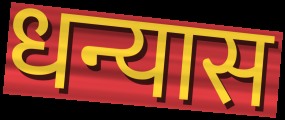
धन्यास